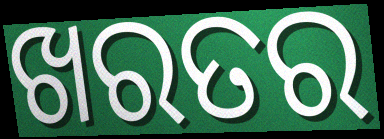
ଖରତର